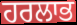
ਹਰਲਾਭ